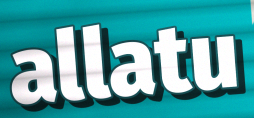
allatu